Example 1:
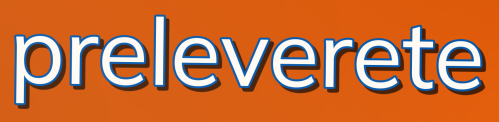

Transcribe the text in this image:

preleverete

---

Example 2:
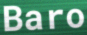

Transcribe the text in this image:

Baro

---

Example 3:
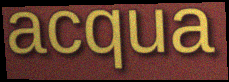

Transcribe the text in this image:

acqua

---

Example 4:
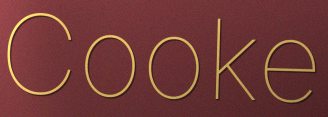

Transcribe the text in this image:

Cooke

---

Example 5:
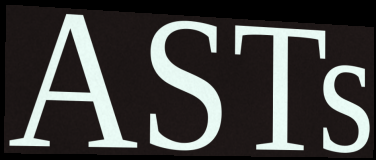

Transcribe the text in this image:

ASTs